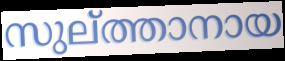
സുല്ത്താനായ